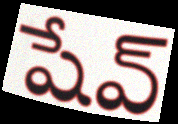
షేవ్